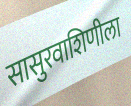
सासुरवाशिणीला